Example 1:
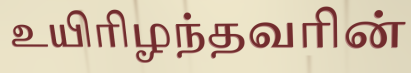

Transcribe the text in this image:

உயிரிழந்தவரின்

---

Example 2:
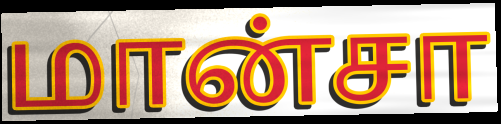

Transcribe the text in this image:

மான்சா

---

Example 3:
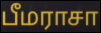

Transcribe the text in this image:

பீமராசா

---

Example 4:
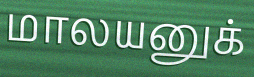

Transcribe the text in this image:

மாலயனுக்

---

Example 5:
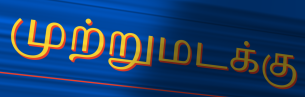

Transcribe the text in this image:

முற்றுமடக்கு